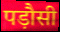
पड़ौसी